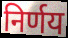
निर्णय